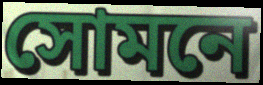
সোমনে